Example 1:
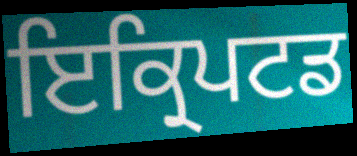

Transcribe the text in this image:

ਇਕ੍ਰਿਪਟਡ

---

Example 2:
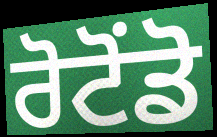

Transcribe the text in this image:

ਰੋਟੋਂਡੋ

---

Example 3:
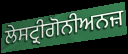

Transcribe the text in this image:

ਲੇਸਟ੍ਰੀਗੋਨੀਅਨਜ਼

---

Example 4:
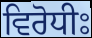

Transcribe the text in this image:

ਵਿਰੋਧੀਃ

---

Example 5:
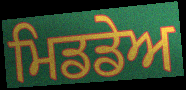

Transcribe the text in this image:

ਮਿਡਡੇਅ